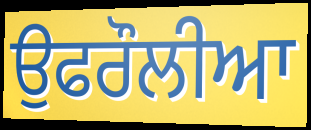
ਉਫਰੌਲੀਆ